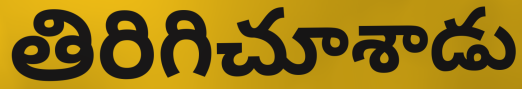
తిరిగిచూశాడు